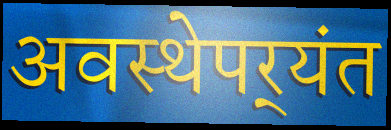
अवस्थेपर्यंत